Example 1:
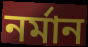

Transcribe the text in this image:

নর্মান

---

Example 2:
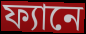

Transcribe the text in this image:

ফ্যানে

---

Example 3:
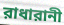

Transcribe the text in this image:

রাধারানী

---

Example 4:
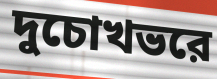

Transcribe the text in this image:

দুচোখভরে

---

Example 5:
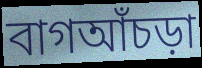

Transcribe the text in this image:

বাগআঁচড়া